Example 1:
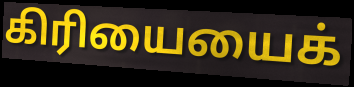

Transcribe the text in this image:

கிரியையைக்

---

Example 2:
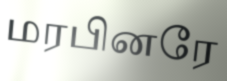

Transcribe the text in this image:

மரபினரே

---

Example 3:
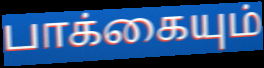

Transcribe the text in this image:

பாக்கையும்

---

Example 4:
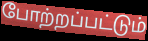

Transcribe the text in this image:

போற்றப்பட்டும்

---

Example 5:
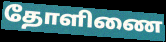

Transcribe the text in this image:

தோளிணை